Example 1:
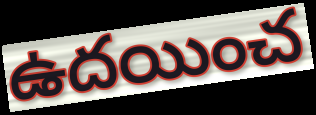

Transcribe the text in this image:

ఉదయించ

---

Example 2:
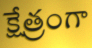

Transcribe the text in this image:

క్షేత్రంగా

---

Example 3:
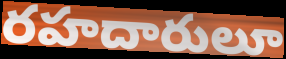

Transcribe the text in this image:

రహదారులూ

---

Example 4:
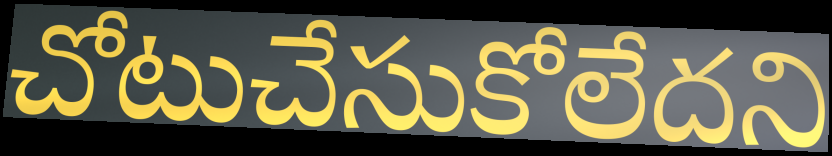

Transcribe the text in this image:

చోటుచేసుకోలేదని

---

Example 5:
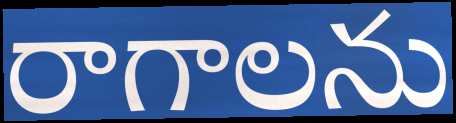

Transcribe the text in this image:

రాగాలను